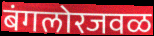
बंगलोरजवळ